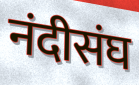
नंदीसंघ